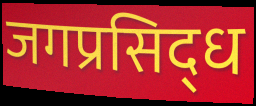
जगप्रसिद्ध